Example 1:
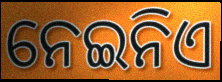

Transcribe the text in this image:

ନେଇନିଏ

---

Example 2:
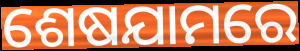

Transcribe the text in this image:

ଶେଷଯାମରେ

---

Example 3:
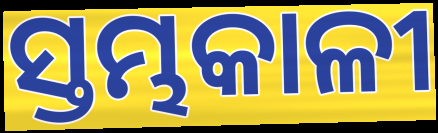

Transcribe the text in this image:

ସ୍ତମ୍ଭକାଳୀ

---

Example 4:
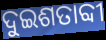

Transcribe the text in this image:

ଦୁଇଶତାବ୍ଦୀ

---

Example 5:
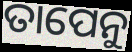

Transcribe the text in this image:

ତାପେନୁ